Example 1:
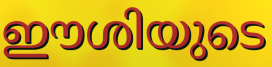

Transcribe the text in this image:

ഈശിയുടെ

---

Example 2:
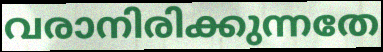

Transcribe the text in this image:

വരാനിരിക്കുന്നതേ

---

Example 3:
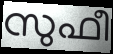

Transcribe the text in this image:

സുഫീ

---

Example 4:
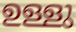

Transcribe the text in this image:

ഉള്ളു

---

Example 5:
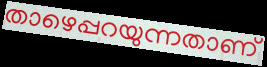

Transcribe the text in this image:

താഴെപ്പറയുന്നതാണ്